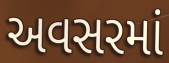
અવસરમાં